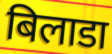
बिलाडा